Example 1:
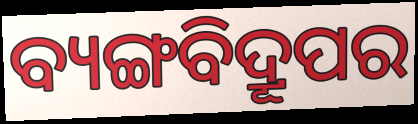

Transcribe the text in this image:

ବ୍ୟଙ୍ଗବିଦ୍ରୂପର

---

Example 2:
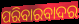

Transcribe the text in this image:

ପରିବାରବାଦର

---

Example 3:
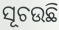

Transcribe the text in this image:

ସୂଚଉଛି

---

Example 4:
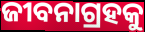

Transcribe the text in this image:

ଜୀବନାଗ୍ରହକୁ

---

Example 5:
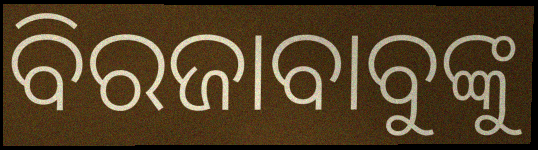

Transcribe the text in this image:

ବିରଜାବାବୁଙ୍କୁ